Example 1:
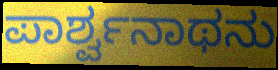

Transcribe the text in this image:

ಪಾರ್ಶ್ವನಾಥನು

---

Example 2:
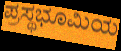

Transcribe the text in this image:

ಪ್ರಸ್ಥಭೂಮಿಯ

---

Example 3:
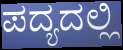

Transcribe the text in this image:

ಪದ್ಯದಲ್ಲಿ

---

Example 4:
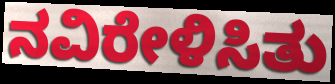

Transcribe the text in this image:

ನವಿರೇಳಿಸಿತು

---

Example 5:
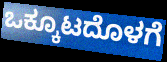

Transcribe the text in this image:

ಒಕ್ಕೂಟದೊಳಗೆ